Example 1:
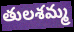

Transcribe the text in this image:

తులశమ్మ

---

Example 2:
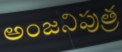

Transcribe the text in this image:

అంజనిపుత్ర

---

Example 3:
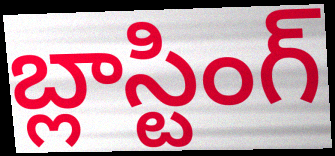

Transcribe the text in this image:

బ్లాస్టింగ్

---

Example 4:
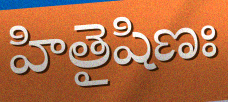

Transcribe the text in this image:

హితైషిణః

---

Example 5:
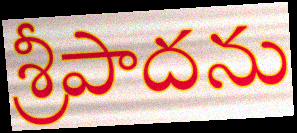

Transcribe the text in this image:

శ్రీపాదను